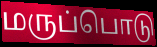
மருப்பொடு